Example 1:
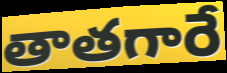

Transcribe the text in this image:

తాతగారే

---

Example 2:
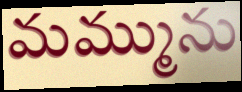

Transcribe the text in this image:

మమ్మును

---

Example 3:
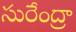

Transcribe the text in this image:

సురేంద్రా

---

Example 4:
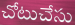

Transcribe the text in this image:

చోటుచేసు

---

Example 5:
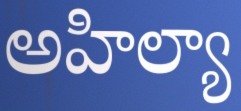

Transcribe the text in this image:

అహిల్యా